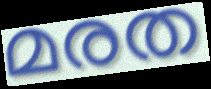
മരത